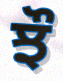
ਝੌ